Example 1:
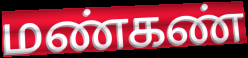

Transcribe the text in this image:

மண்கண்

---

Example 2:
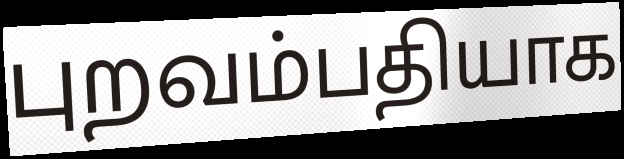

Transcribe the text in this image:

புறவம்பதியாக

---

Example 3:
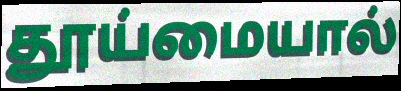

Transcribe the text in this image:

தூய்மையால்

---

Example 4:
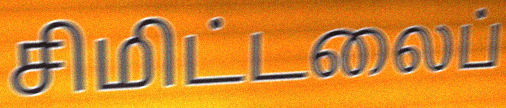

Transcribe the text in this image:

சிமிட்டலைப்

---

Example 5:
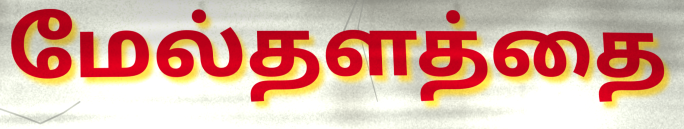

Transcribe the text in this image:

மேல்தளத்தை